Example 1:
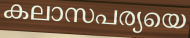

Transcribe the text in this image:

കലാസപര്യയെ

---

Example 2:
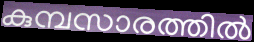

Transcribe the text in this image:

കുമ്പസാരത്തിൽ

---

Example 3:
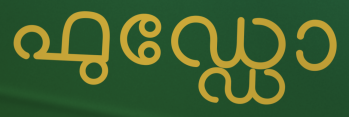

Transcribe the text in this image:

ഫുഡ്ഡോ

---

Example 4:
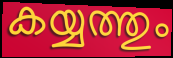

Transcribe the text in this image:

കയ്യത്തും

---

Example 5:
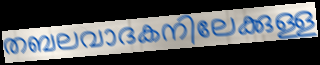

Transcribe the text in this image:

തബലവാദകനിലേക്കുള്ള